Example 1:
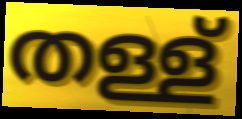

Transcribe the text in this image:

തള്ള്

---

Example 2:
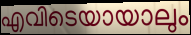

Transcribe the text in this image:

എവിടെയായാലും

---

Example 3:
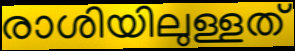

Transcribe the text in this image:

രാശിയിലുള്ളത്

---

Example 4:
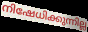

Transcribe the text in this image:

നിഷേധിക്കുന്നില്ല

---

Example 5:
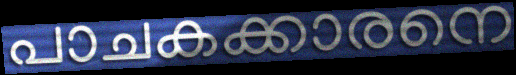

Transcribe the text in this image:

പാചകക്കാരനെ